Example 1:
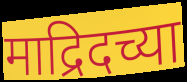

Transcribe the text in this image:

माद्रिदच्या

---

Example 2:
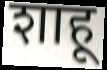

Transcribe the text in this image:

शाहू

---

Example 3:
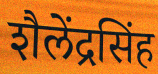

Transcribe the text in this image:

शैलेंद्रसिंह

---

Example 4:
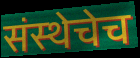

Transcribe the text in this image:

संस्थेचेच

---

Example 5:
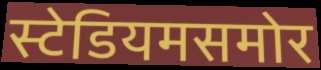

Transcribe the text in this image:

स्टेडियमसमोर